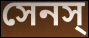
সেনস্